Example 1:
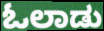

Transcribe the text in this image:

ಓಲಾಡು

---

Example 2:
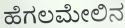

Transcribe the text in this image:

ಹೆಗಲಮೇಲಿನ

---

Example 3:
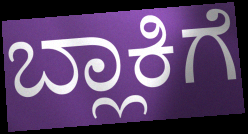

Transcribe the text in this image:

ಬ್ಲಾಕಿಗೆ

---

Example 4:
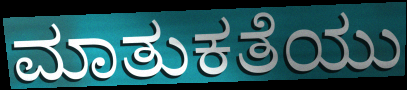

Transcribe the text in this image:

ಮಾತುಕತೆಯು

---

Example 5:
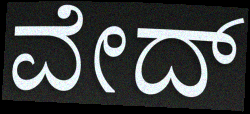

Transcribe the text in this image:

ವೇದ್